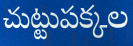
చుట్టుపక్కల